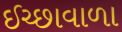
ઈચ્છાવાળા